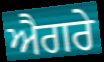
ਐਗਰੇ